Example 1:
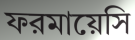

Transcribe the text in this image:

ফরমায়েসি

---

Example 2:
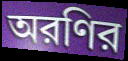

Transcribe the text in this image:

অরণির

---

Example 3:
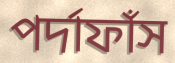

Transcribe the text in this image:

পর্দাফাঁস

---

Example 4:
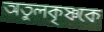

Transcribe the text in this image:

অতুলকৃষ্ণকে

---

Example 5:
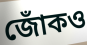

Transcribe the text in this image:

জোঁকও